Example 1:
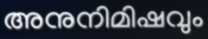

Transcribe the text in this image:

അനുനിമിഷവും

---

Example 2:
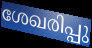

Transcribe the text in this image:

ശേഖരിപ്പു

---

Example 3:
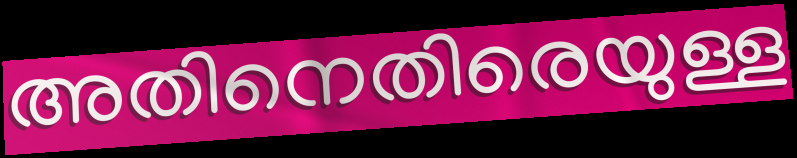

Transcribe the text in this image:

അതിനെതിരെയുള്ള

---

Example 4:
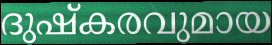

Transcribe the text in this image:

ദുഷ്കരവുമായ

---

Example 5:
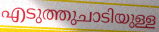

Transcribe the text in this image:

എടുത്തുചാടിയുള്ള